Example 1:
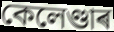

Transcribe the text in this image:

কেলেণ্ডাৰ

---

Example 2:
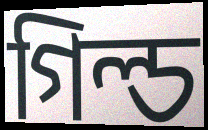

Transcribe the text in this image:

গিল্ড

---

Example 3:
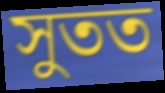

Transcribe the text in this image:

সুতত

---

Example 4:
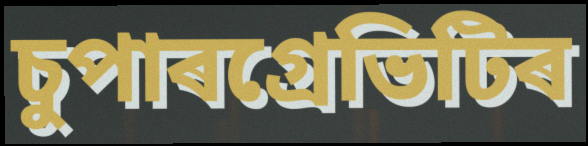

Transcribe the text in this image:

চুপাৰগ্ৰেভিটিৰ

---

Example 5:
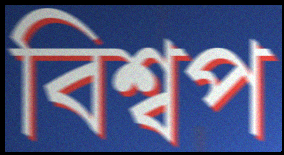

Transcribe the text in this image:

বিশ্বপ